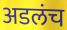
अडलंच